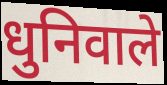
धुनिवाले